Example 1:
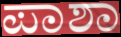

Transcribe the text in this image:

ಪಾಶಾ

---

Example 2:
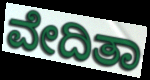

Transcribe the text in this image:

ವೇದಿತಾ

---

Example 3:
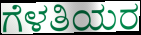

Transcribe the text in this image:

ಗೆಳತಿಯರ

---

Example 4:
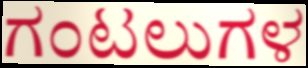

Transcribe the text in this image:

ಗಂಟಲುಗಳ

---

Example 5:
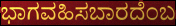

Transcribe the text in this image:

ಭಾಗವಹಿಸಬಾರದೆಂಬ